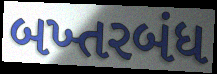
બખ્તરબંધ